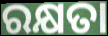
ରକ୍ଷତା